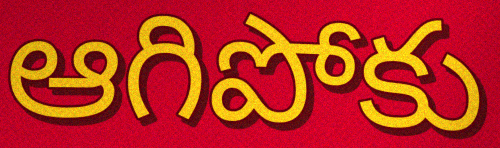
ఆగిపోకు